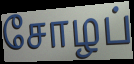
சோழப்